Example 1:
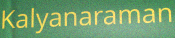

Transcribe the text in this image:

Kalyanaraman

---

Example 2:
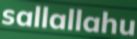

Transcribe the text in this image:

sallallahu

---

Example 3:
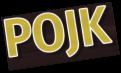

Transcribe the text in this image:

POJK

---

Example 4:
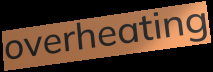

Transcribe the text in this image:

overheating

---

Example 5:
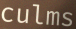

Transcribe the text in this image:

culms